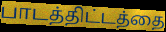
பாடத்திட்டத்தை